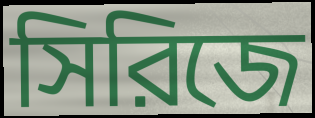
সিরিজে